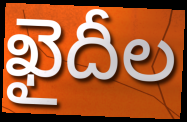
ఖైదీల